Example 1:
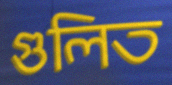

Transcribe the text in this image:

গুলিত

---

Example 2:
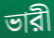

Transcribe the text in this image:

ভারী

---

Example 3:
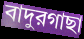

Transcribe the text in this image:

বাদুরগাছা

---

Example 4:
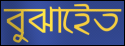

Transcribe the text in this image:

বুঝাইেত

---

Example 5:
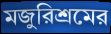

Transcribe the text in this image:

মজুরিশ্রমের